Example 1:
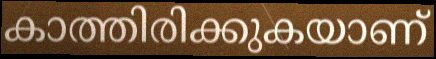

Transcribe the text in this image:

കാത്തിരിക്കുകയാണ്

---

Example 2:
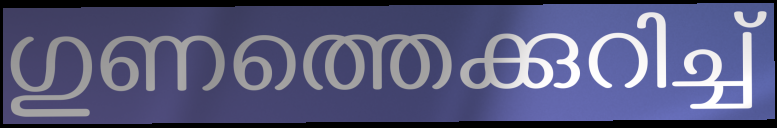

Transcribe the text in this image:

ഗുണത്തെക്കുറിച്ച്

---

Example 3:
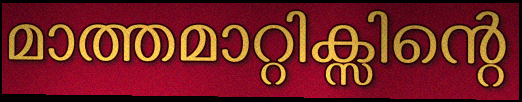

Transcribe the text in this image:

മാത്തമാറ്റിക്സിന്റെ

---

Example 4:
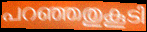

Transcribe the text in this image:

പറഞ്ഞതുകൂടി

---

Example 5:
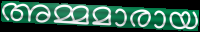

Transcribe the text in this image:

അമ്മമാരായ